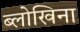
ब्लोखिना